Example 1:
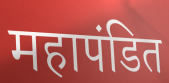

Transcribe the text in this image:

महापंडित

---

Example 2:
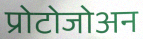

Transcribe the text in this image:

प्रोटोजोअन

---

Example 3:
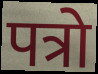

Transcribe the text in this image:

पत्रो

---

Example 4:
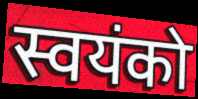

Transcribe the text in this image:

स्वयंको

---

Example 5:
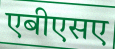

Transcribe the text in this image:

एबीएसए